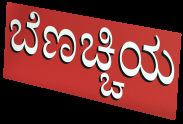
ಬೆಣಚ್ಚಿಯ